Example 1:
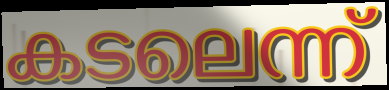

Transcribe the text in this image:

കടലെന്ന്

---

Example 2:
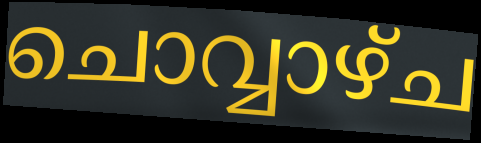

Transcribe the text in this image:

ചൊവ്വാഴ്ച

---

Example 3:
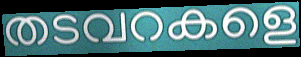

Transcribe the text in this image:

തടവറകളെ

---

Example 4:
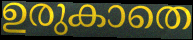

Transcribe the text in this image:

ഉരുകാതെ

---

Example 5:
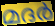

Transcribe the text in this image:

മദർ